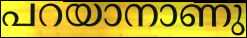
പറയാനാണു